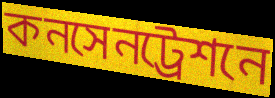
কনসেনট্রেশনে